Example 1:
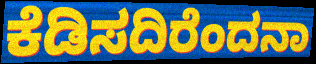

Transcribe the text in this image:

ಕೆಡಿಸದಿರೆಂದನಾ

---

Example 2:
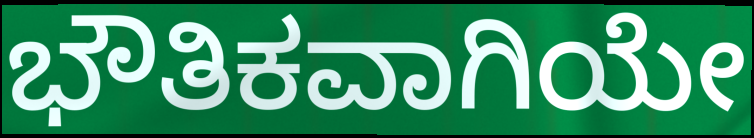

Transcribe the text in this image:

ಭೌತಿಕವಾಗಿಯೇ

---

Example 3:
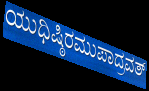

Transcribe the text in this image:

ಯುಧಿಷ್ಠಿರಮುಪಾದ್ರವತ್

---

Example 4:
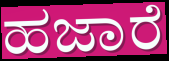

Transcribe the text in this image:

ಹಜಾರೆ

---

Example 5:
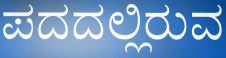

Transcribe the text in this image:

ಪದದಲ್ಲಿರುವ